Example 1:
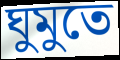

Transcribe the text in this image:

ঘুমুতে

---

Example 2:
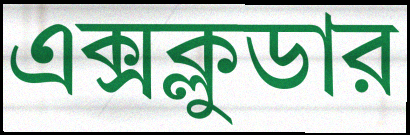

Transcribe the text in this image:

এক্সক্লুডার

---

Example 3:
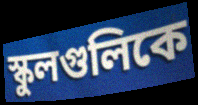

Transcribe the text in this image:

স্কুলগুলিকে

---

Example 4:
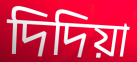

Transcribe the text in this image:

দিদিয়া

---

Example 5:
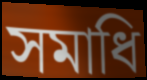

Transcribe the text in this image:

সমাধি